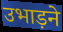
उभाड़ने